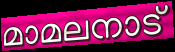
മാമലനാട്